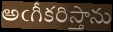
అఁగీకరిస్తాను